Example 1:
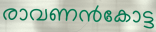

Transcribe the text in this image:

രാവണൻകോട്ട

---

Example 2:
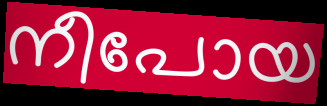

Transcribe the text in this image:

നീപോയ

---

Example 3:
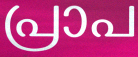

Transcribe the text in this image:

പ്രാപ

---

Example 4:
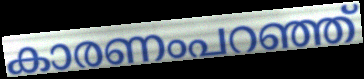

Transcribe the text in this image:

കാരണംപറഞ്ഞ്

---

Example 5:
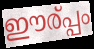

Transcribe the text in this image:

ഈര്പ്പം